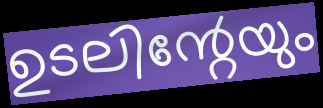
ഉടലിന്റേയും